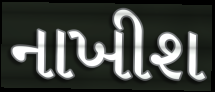
નાખીશ